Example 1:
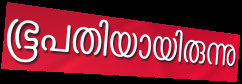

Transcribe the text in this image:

ഭൂപതിയായിരുന്നു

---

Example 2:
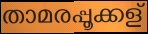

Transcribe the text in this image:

താമരപ്പൂക്കള്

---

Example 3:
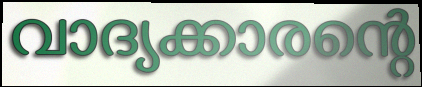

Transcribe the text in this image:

വാദ്യക്കാരന്റെ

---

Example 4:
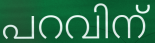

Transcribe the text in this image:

പറവിന്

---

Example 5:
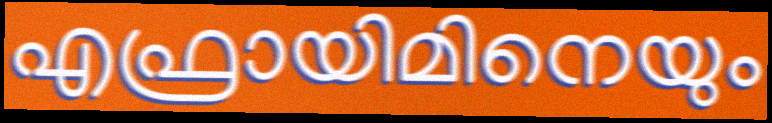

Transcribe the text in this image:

എഫ്രായിമിനെയും